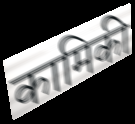
कामिकी